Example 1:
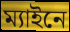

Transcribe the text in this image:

ম্যাইনে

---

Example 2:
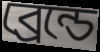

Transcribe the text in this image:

ব্রেন্ডে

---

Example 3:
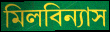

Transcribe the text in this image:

মিলবিন্যাস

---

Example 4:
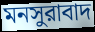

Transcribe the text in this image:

মনসুরাবাদ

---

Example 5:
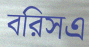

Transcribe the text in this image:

বরিসএ